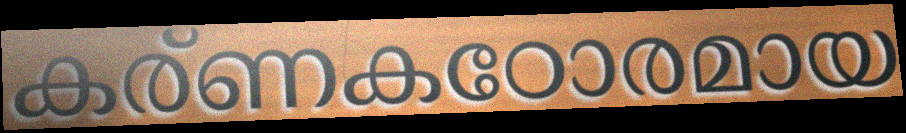
കര്ണകഠോരമായ